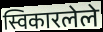
स्विकारलेले